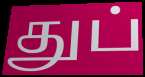
துப்